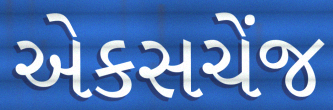
એકસચેંજ